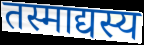
तस्माद्यस्य